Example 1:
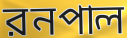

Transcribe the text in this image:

রনপাল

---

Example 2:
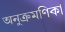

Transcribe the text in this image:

অনুক্রমণিকা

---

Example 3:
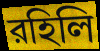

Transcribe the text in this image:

রহিলি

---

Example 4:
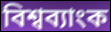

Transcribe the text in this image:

বিশ্বব্যাংক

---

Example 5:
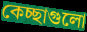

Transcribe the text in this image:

কেচ্ছাগুলো